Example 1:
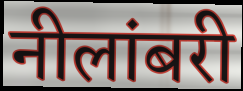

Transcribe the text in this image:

नीलांबरी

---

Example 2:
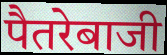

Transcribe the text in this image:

पैतरेबाजी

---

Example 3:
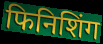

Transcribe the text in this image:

फिनिशिंग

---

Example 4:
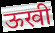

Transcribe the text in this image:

ऊखी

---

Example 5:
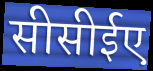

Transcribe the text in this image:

सीसीईए